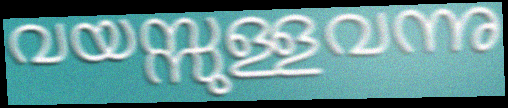
വയസ്സുള്ളവന്നു